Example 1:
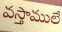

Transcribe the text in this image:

వస్తాములే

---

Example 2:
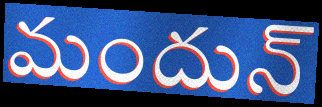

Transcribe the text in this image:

మందున్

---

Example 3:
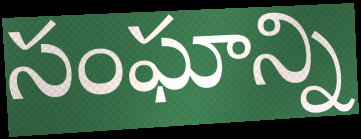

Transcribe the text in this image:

సంఘాన్ని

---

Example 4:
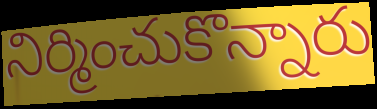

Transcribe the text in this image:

నిర్మించుకొన్నారు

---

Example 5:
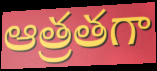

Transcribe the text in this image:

ఆత్రతగా